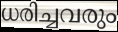
ധരിച്ചവരും